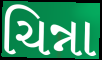
ચિન્ના